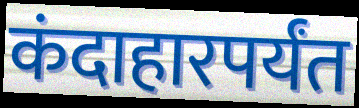
कंदाहारपर्यंत